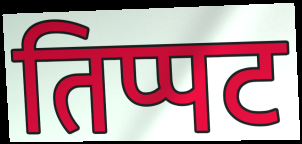
तिप्पट